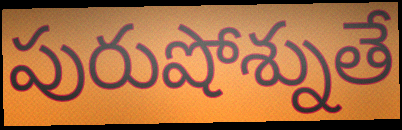
పురుషోశ్నుతే